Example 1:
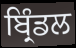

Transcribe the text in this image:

ਬ੍ਰਿੰਡਲ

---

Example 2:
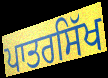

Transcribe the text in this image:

ਪਾਤਰਸਿੱਖ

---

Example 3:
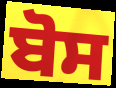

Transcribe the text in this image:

ਬੋਸ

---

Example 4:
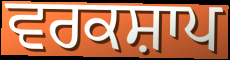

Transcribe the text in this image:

ਵਰਕਸ਼ਾਪ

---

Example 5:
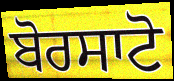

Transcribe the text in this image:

ਬੋਰਸਾਟੋ